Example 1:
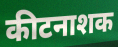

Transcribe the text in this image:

कीटनाशक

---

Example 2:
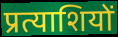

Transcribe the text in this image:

प्रत्याशियों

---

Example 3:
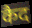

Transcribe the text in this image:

कैद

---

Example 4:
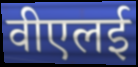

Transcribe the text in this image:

वीएलई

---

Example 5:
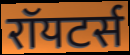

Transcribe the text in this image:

रॉयटर्स